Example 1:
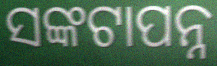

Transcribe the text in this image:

ସଙ୍କଟାପନ୍ନ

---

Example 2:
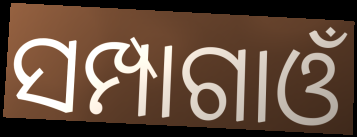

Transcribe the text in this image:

ସମ୍ପାଗାଓଁ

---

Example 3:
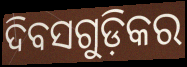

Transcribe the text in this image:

ଦିବସଗୁଡ଼ିକର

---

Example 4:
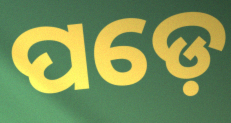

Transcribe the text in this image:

ପଡ଼େ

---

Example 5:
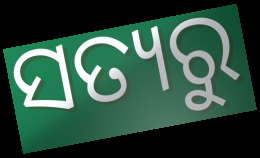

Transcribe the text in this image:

ସତ୍ୟରୁ